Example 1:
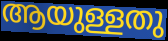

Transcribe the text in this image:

ആയുള്ളതു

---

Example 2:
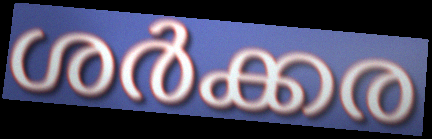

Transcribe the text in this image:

ശർക്കര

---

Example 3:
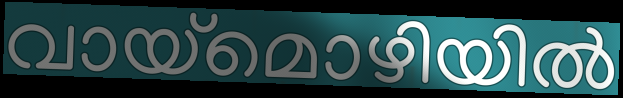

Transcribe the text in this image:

വായ്മൊഴിയിൽ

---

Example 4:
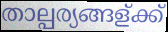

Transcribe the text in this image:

താല്പര്യങ്ങള്ക്ക്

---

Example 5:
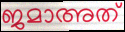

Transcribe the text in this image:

ജമാഅത്